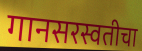
गानसरस्वतीचा